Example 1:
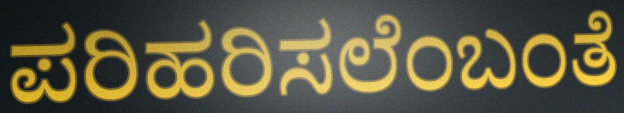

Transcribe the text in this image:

ಪರಿಹರಿಸಲೆಂಬಂತೆ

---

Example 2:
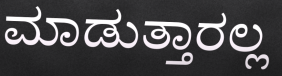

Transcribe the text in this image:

ಮಾಡುತ್ತಾರಲ್ಲ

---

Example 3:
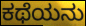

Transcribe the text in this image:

ಕಥೆಯನು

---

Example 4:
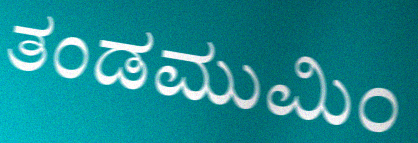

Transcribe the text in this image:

ತಂಡಮುಮಿಂ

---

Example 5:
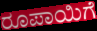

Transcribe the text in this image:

ರೂಪಾಯಿಗೆ